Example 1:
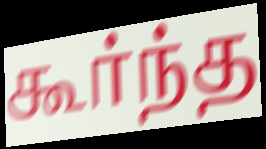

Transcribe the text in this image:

கூர்ந்த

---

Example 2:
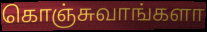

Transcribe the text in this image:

கொஞ்சுவாங்களா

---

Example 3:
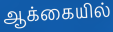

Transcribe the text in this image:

ஆக்கையில்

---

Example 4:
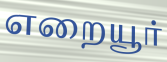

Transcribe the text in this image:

எறையூர்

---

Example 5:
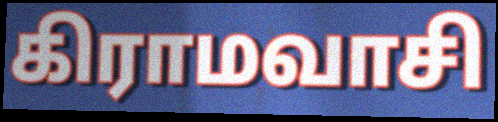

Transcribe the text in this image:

கிராமவாசி